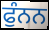
ਫੁੰਨਨ